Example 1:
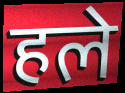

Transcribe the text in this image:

हले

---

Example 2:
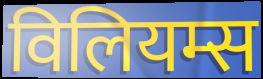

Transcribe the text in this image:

विलियम्‍स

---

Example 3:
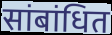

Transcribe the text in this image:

सांबांधित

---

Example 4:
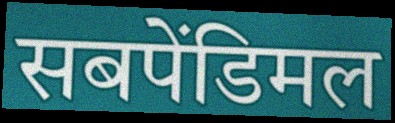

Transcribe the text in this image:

सबपेंडिमल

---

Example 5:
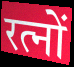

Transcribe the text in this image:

रत्‍नों